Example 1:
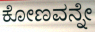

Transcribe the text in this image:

ಕೋಣವನ್ನೇ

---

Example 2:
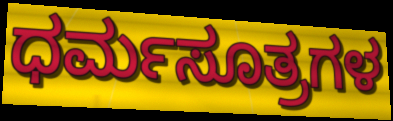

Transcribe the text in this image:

ಧರ್ಮಸೂತ್ರಗಳ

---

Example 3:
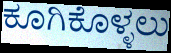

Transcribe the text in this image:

ಕೂಗಿಕೊಳ್ಳಲು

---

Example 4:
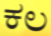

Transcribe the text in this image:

ಕಲ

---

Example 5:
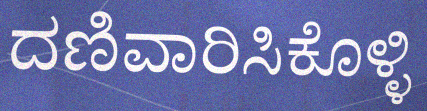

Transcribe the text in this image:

ದಣಿವಾರಿಸಿಕೊಳ್ಳಿ